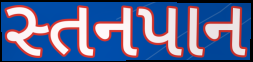
સ્તનપાન